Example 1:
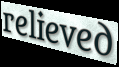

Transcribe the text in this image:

relieved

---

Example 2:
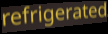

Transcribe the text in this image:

refrigerated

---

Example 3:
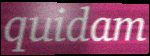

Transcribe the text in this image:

quidam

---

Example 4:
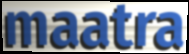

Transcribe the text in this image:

maatra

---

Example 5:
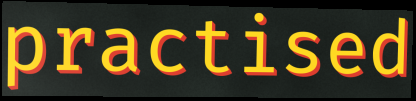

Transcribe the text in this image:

practised